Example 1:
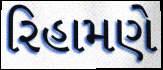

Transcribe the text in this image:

રિહામણે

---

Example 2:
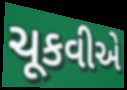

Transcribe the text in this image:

ચૂકવીએ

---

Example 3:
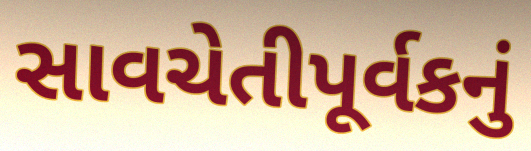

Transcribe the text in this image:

સાવચેતીપૂર્વકનું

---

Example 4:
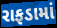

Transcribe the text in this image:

રાફડામાં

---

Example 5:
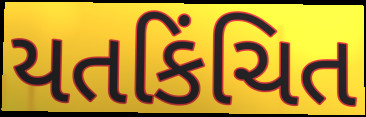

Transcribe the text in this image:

યતકિંચિત